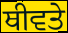
ਥੀਵਤੇ